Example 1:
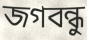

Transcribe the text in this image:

জগবন্ধু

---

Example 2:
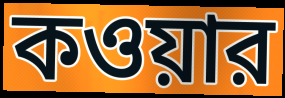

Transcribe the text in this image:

কওয়ার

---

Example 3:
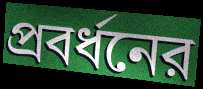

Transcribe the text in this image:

প্রবর্ধনের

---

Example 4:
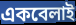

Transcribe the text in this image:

একবেলাই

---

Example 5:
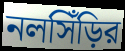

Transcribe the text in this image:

নলসিঁড়ির